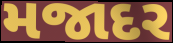
મજાદર